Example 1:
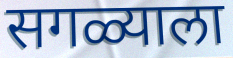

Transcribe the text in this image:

सगळ्याला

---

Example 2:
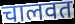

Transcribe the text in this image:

चालवत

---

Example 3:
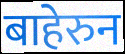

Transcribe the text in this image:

बाहेरुन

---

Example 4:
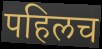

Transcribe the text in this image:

पहिलच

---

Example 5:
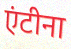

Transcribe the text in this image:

एंटीना